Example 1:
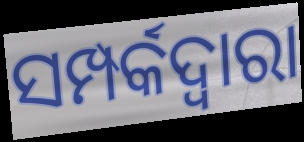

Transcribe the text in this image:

ସମ୍ପର୍କଦ୍ୱାରା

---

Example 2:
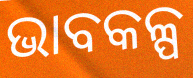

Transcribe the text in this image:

ଭାବକଳ୍ପ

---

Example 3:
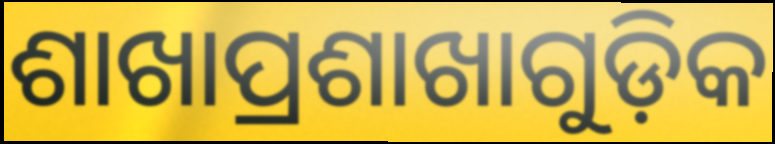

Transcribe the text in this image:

ଶାଖାପ୍ରଶାଖାଗୁଡ଼ିକ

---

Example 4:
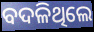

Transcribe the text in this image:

ବଦଳିଥିଲେ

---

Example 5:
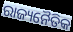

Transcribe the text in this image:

ରାଜ୍ୟନୈତିକ